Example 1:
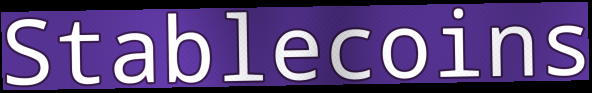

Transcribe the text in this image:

Stablecoins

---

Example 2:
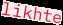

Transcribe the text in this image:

likhte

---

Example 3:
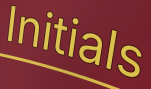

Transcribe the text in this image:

Initials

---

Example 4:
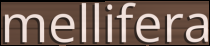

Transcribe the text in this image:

mellifera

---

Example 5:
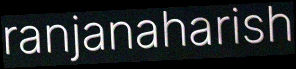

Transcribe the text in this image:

ranjanaharish